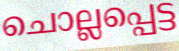
ചൊല്ലപ്പെട്ട